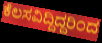
ಕೆಲಸವಿದ್ದಿದ್ದರಿಂದ